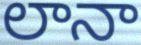
లానా